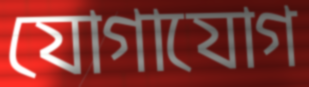
যোগাযোগ